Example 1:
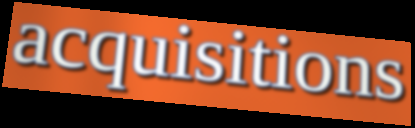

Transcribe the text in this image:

acquisitions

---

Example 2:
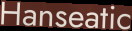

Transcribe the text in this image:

Hanseatic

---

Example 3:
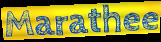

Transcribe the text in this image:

Marathee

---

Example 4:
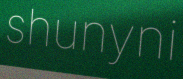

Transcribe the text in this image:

shunyni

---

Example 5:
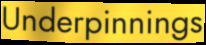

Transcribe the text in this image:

Underpinnings